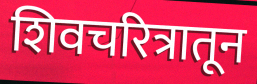
शिवचरित्रातून